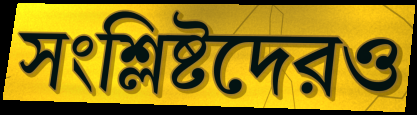
সংশ্লিষ্টদেরও